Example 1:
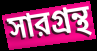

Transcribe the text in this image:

সারগ্রন্থ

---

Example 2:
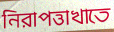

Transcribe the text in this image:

নিরাপত্তাখাতে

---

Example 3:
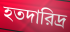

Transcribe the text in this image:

হতদারিদ্র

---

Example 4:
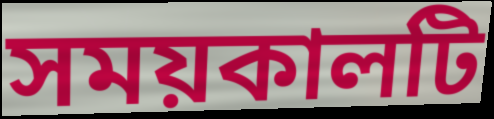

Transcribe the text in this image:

সময়কালটি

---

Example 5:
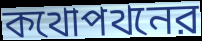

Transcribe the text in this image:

কথোপথনের